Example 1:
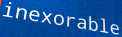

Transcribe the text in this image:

inexorable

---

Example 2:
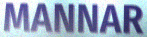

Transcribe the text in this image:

MANNAR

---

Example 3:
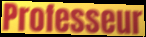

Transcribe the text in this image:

Professeur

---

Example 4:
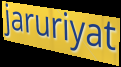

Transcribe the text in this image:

jaruriyat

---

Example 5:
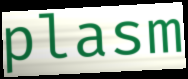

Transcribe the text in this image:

plasm